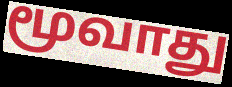
மூவாது